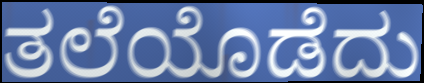
ತಲೆಯೊಡೆದು